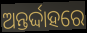
ଅନ୍ତର୍ଦ୍ଦାହରେ